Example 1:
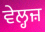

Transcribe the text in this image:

ਵੇਲ੍ਹਜ਼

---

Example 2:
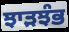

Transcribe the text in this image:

ਝਾੜਝੰਭ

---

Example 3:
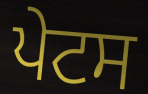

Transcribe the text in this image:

ਪੇਟਸ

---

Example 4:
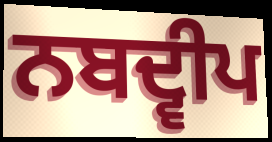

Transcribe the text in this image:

ਨਬਦ੍ਵੀਪ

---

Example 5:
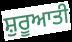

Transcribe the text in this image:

ਸ਼ੁਰੂਆਤੀ